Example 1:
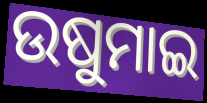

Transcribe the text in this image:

ଉଷୁମାଇ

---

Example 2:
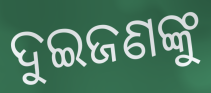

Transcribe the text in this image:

ଦୁଇଜଣଙ୍କୁ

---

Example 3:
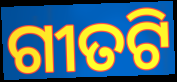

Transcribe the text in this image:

ଗୀତଟି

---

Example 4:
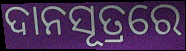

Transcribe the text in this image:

ଦାନସୂତ୍ରରେ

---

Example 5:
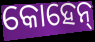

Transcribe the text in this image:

କୋହେନ୍